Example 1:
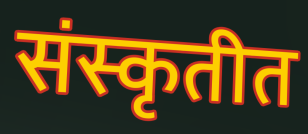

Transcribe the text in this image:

संस्कृतीत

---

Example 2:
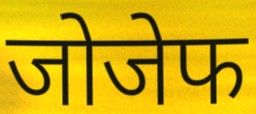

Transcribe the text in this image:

जोजेफ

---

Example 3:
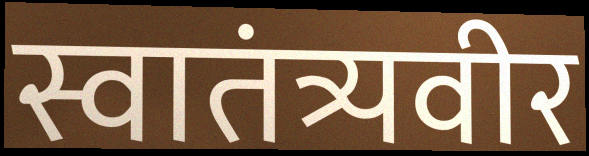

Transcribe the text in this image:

स्वातंत्र्यवीर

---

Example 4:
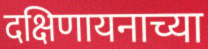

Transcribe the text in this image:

दक्षिणायनाच्या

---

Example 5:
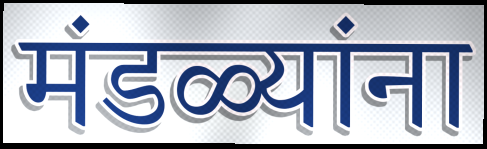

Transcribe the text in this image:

मंडळ्यांना